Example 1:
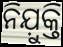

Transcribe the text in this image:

ନିଯ଼ୁକ୍ତି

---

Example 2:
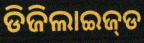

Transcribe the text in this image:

ଡିଜିଲାଇଜ୍‌ଡ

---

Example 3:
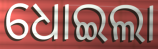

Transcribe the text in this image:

ଧୋଇଲା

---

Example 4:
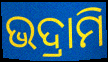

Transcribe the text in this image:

ଭଦ୍ରାମି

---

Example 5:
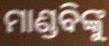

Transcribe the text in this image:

ମାଣ୍ଡବିଙ୍କୁ